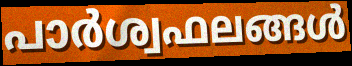
പാർശ്വഫലങ്ങൾ